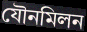
যৌনমিলন